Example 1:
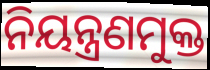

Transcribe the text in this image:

ନିୟନ୍ତ୍ରଣମୁକ୍ତ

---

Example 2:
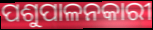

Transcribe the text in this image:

ପଶୁପାଳନକାରୀ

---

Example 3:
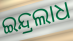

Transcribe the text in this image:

ଇନ୍ଦ୍ରଲାଧ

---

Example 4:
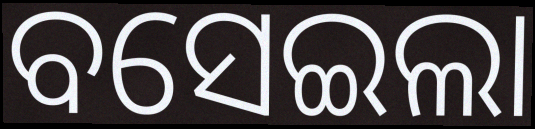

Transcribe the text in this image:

ବସେଇଲା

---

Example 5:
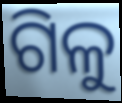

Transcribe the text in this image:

ଗିଳୁ